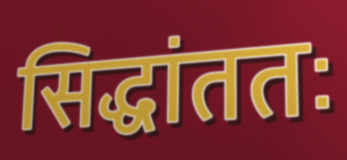
सिद्धांततः